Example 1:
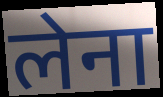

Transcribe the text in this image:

लेना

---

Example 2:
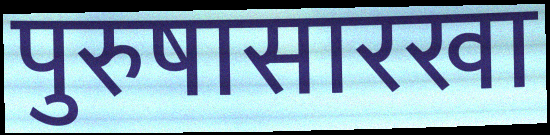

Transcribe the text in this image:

पुरुषासारखा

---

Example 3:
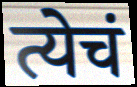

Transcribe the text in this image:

त्येचं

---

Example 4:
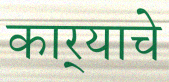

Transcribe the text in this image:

कार्याचे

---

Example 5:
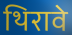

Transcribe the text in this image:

थिरावे